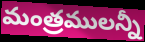
మంత్రములన్నీ